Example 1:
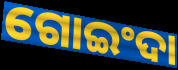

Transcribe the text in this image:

ଗୋଇଂଦା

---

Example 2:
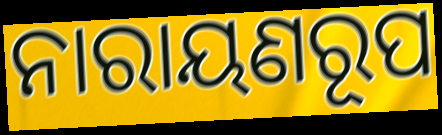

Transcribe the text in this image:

ନାରାୟଣରୂପ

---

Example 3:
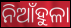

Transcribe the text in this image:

ନିଆଁହୁଳା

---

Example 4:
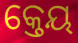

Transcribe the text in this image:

କ୍ତେୟ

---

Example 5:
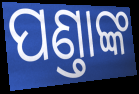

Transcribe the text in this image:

ପଣ୍ତାଙ୍କ